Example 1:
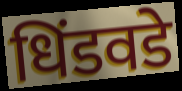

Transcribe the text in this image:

धिंडवडे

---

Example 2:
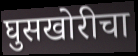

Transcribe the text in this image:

घुसखोरीचा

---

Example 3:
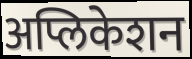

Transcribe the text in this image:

अप्लिकेशन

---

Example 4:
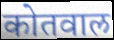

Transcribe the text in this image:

कोतवाल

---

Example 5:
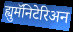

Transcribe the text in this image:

ह्युमॅनिटेरिअन